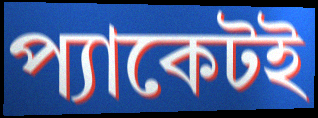
প্যাকেটই